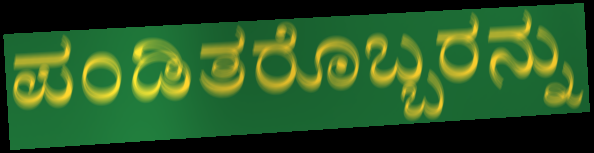
ಪಂಡಿತರೊಬ್ಬರನ್ನು